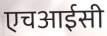
एचआईसी